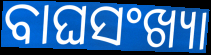
ବାଘସଂଖ୍ୟା